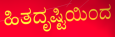
ಹಿತದೃಷ್ಟಿಯಿಂದ